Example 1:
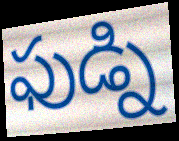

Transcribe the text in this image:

ఫుడ్ని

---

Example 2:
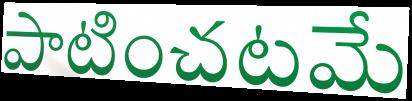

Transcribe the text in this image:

పాటించటమే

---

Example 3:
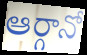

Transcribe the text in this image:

ఆర్గానో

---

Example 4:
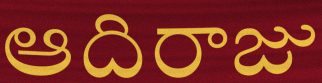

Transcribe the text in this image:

ఆదిరాజు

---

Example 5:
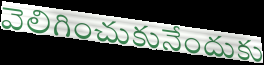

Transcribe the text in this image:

వెలిగించుకునేందుకు